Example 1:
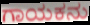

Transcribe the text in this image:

ಗಾಯಕನು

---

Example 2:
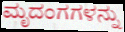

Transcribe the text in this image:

ಮೃದಂಗಗಳನ್ನು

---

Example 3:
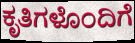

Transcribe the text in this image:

ಕೃತಿಗಳೊಂದಿಗೆ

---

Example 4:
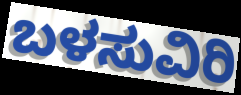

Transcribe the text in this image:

ಬಳಸುವಿರಿ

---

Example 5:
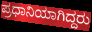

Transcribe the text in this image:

ಪ್ರಧಾನಿಯಾಗಿದ್ದರು